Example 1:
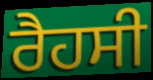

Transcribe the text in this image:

ਰੈਹਸੀ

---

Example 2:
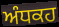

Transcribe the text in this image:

ਅੰਧਕਹ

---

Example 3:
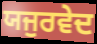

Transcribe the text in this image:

ਯਜੁਰਵੇਦ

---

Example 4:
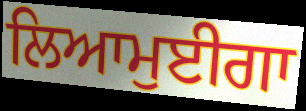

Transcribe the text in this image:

ਲਿਆਮੁਈਗਾ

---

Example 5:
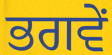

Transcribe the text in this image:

ਭਗਵੇਂ